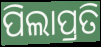
ପିଲାପ୍ରତି